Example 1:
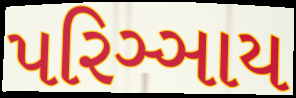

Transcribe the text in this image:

પરિઞ્ઞાય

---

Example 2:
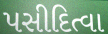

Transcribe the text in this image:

પસીદિત્વા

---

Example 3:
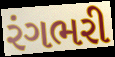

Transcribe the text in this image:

રંગભરી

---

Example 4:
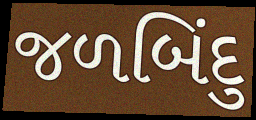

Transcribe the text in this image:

જળબિંદુ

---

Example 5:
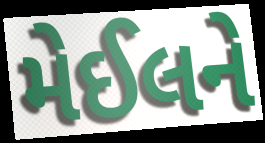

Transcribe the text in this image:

મેઈલને